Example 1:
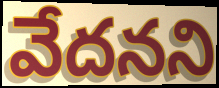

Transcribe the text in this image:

వేదనని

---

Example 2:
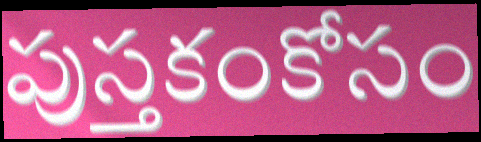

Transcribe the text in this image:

పుస్తకంకోసం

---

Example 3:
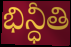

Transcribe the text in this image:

భిన్ధీతి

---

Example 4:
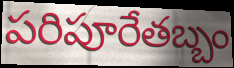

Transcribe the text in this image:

పరిపూరేతబ్బం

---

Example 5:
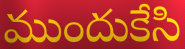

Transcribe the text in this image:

ముందుకేసి